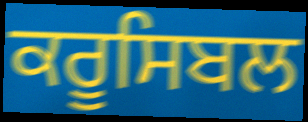
ਕਰੂਸਿਬਲ